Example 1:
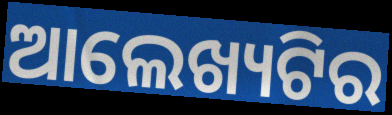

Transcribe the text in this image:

ଆଲେଖ୍ୟଟିର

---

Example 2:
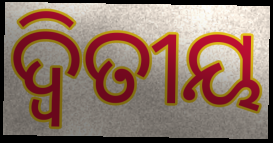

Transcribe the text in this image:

ଦ୍ୱିତୀୟ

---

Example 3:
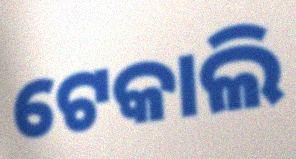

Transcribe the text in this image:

ଟେକାଲି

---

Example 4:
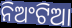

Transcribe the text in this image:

ନିଅଂଟିଆ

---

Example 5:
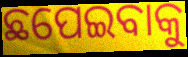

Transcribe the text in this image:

ଛପେଇବାକୁ